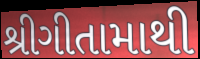
શ્રીગીતામાથી